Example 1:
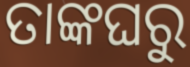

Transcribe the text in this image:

ତାଙ୍କଘରୁ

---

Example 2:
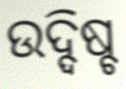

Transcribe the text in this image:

ଉଦ୍ଦିଷ୍ଚ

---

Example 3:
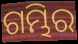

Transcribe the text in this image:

ଗମ୍ଭିର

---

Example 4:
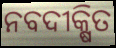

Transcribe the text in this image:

ନବଦୀକ୍ଷିତ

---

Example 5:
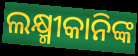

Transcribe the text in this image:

ଲକ୍ଷ୍ମୀକାନିଙ୍କ